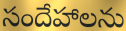
సందేహాలను